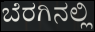
ಬೆರಗಿನಲ್ಲಿ